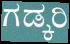
ಗಡ್ಕರಿ